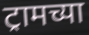
ट्रामच्या